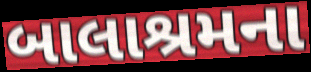
બાલાશ્રમના